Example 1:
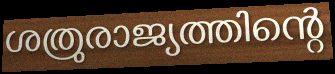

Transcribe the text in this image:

ശത്രുരാജ്യത്തിന്റെ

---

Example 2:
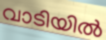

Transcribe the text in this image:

വാടിയിൽ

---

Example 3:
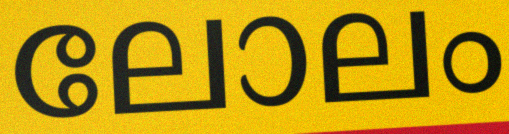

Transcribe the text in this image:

ലോലം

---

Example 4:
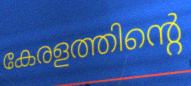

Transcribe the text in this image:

കേരളത്തിന്റെ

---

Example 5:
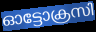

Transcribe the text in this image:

ഓട്ടോക്രസി